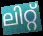
ലിറ്റ്